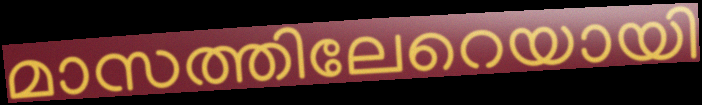
മാസത്തിലേറെയായി